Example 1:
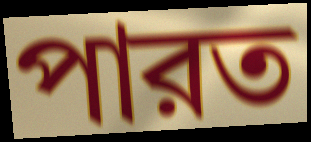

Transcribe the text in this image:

পারত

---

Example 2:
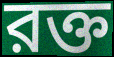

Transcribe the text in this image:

রক্ত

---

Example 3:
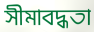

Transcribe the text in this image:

সীমাবদ্ধতা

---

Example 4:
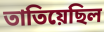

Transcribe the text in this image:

তাতিয়েছিল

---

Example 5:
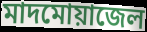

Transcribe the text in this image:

মাদমোয়াজেল